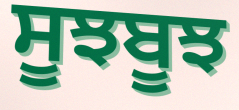
ਸੂਝਬੂਝ